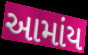
આમાંય